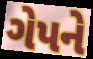
ગેપને